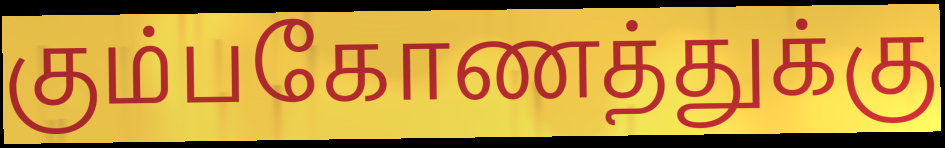
கும்பகோணத்துக்கு